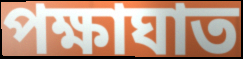
পক্ষাঘাত